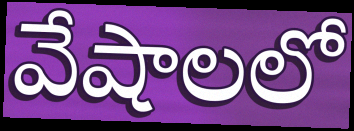
వేషాలలో